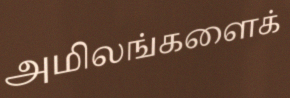
அமிலங்களைக்